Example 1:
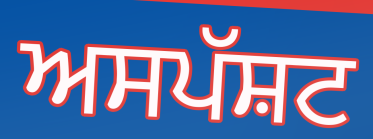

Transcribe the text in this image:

ਅਸਪੱਸ਼ਟ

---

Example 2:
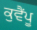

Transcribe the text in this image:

ਕੁਵੈਂਪੂ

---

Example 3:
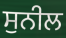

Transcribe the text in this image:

ਸੁਨੀਲ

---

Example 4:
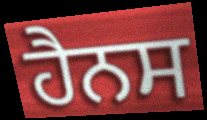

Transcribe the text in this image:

ਹੈਨਸ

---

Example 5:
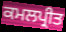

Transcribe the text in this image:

ਕਮਲਪ੍ਰੀਤ